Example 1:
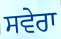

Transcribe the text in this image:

ਸਵੇਰਾ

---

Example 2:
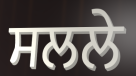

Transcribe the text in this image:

ਸਲਲੇ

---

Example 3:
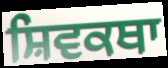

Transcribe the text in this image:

ਸ਼ਿਵਕਥਾ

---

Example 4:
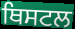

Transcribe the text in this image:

ਥਿਸਟਲ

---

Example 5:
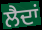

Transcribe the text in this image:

ਲੈਦਾਂ